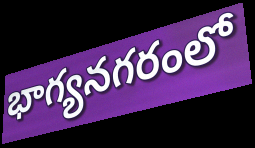
భాగ్యనగరంలో